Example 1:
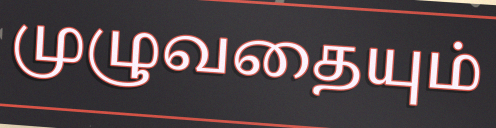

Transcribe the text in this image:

முழுவதையும்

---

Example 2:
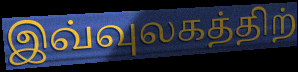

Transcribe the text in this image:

இவ்வுலகத்திற்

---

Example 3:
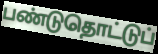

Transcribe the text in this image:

பண்டுதொட்டுப்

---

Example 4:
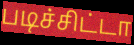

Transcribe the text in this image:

படிச்சிட்டா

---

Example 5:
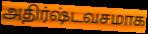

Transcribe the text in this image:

அதிர்ஷ்டவசமாக